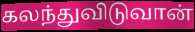
கலந்துவிடுவான்